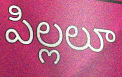
పిల్లలూ